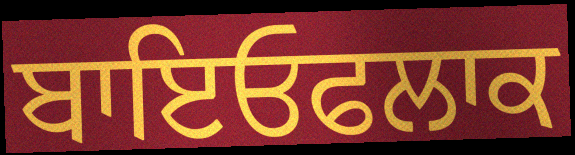
ਬਾਇਓਫਲਾਕ